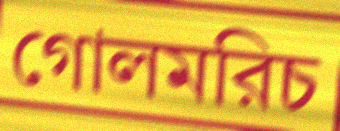
গোলমরিচ